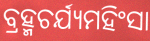
ବ୍ରହ୍ମଚର୍ଯ୍ୟମହିଂସା